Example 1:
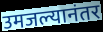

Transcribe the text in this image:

उमजल्यानंतर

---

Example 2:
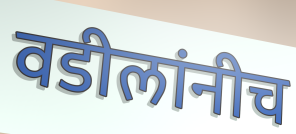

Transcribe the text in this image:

वडीलांनीच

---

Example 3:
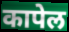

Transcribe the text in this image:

कापेल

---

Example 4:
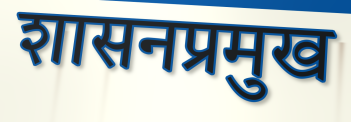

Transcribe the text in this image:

शासनप्रमुख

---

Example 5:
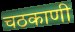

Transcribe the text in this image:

चठकाणी